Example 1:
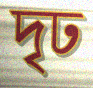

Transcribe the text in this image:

দৃঢ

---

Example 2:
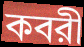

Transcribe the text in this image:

কবরী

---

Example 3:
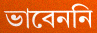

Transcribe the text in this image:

ভাবেননি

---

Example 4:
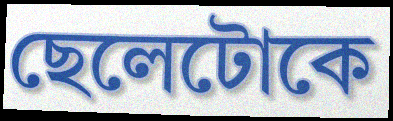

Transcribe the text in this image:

ছেলেটোকে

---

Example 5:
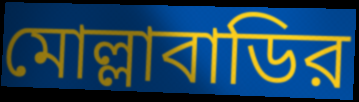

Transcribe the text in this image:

মোল্লাবাডির